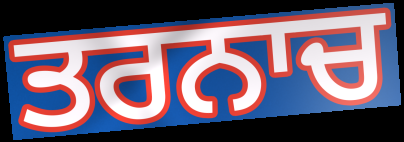
ਤਰਨਾਚ